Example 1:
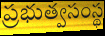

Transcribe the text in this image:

ప్రభుత్వసంస్థ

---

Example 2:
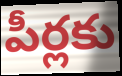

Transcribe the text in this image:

పీర్లకు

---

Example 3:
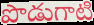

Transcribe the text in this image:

పొడుగాటి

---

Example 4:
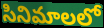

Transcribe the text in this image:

సినిమాలలో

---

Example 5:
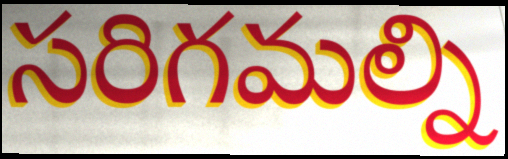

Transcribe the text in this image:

సరిగమల్ని